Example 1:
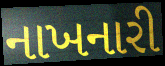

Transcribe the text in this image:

નાખનારી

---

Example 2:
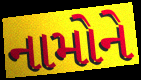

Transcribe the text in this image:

નામોને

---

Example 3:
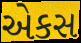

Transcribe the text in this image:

એકસ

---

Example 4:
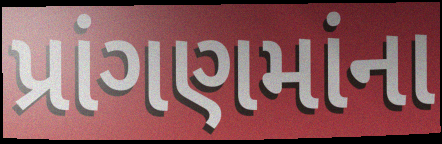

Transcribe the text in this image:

પ્રાંગણમાંના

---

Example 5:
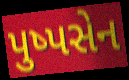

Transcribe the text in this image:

પુષ્પસેન